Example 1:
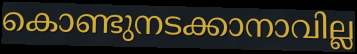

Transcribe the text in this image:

കൊണ്ടുനടക്കാനാവില്ല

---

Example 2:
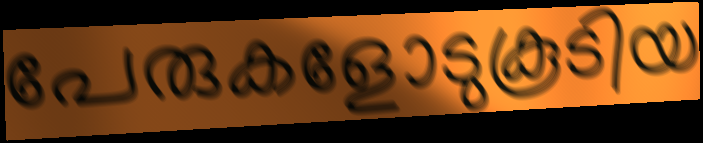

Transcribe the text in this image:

പേരുകളോടുകൂടിയ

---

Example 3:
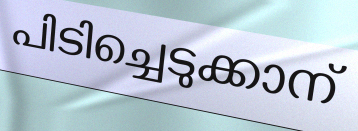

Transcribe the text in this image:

പിടിച്ചെടുക്കാന്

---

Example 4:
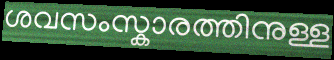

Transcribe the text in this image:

ശവസംസ്കാരത്തിനുള്ള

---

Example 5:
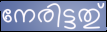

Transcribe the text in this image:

നേരിട്ടതു്